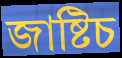
জাষ্টিচ